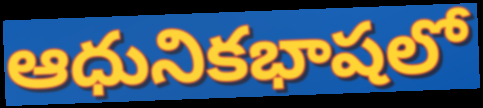
ఆధునికభాషలో